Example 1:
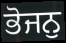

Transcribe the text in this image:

ਭੋਜਨੁ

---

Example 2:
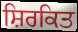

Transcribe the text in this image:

ਸ਼ਿਰਕਿਤ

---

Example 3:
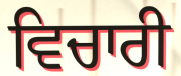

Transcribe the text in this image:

ਵਿਚਾਰੀ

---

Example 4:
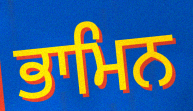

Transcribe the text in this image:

ਭਾਮਿਨ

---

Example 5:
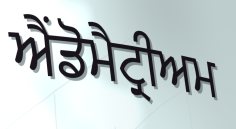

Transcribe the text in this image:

ਐਂਡੋਮੈਟ੍ਰੀਅਮ